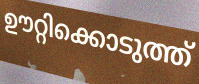
ഊറ്റിക്കൊടുത്ത്